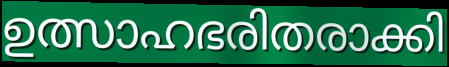
ഉത്സാഹഭരിതരാക്കി